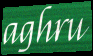
aghru